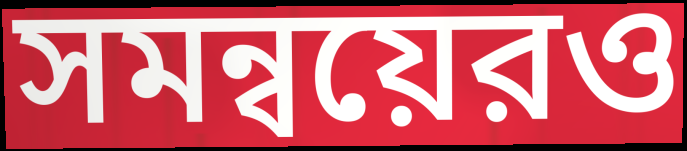
সমন্বয়েরও